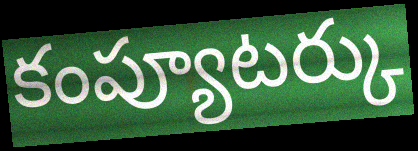
కంప్యూటర్కు